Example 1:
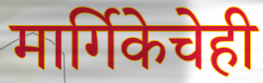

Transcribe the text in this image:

मार्गिकेचेही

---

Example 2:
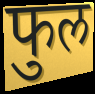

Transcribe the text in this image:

फुल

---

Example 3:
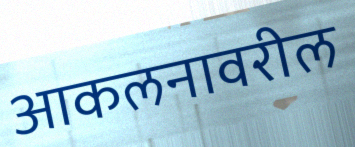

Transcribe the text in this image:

आकलनावरील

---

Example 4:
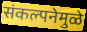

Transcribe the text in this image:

संकल्पनेमुळे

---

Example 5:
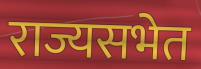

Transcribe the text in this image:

राज्यसभेत